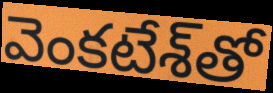
వెంకటేశ్‌తో